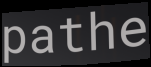
pathe